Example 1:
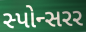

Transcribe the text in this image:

સ્પોન્સરર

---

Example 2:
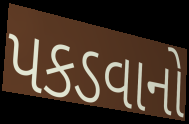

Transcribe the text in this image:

પકડવાનો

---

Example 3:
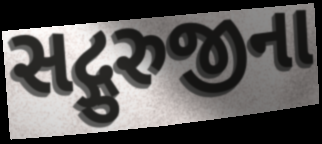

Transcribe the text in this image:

સદ્ગુરુજીના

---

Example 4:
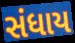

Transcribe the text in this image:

સંધાય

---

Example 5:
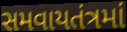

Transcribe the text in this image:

સમવાયતંત્રમાં